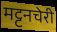
मट्टनचेरी